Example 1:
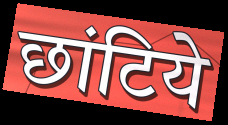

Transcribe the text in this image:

छांटिये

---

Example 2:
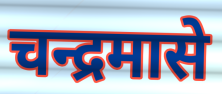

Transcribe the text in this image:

चन्द्रमासे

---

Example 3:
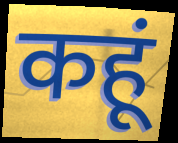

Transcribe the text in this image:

कहूं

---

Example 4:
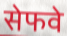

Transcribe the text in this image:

सेफवे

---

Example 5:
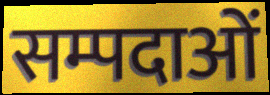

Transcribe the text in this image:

सम्पदाओं